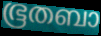
ഭൂതബാ